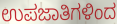
ಉಪಜಾತಿಗಳಿಂದ